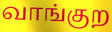
வாங்குற